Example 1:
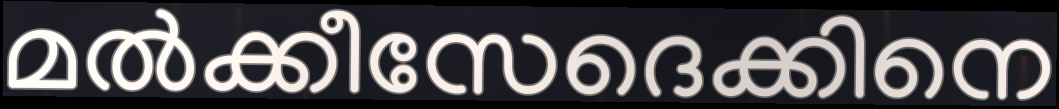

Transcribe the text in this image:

മൽക്കീസേദെക്കിനെ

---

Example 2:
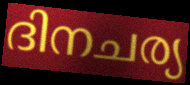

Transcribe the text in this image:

ദിനചര്യ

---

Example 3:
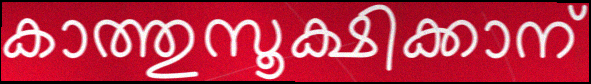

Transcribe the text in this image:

കാത്തുസൂക്ഷിക്കാന്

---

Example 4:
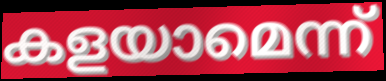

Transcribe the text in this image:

കളയാമെന്ന്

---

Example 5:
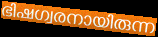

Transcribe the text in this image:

ഭിഷഗ്വരനായിരുന്ന